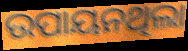
ଉପାୟନଥିଲା